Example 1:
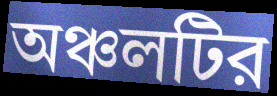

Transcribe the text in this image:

অঞ্চলটির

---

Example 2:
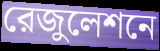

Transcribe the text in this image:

রেজুলেশনে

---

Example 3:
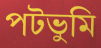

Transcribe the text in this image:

পটভুমি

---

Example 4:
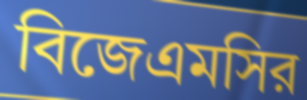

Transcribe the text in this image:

বিজেএমসির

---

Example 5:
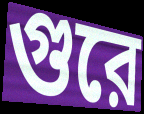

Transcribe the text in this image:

গুরে